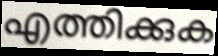
എത്തിക്കുക